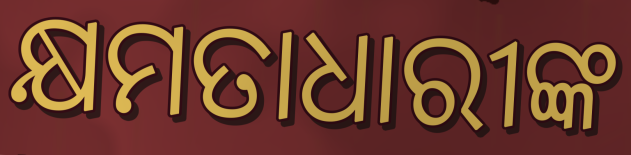
କ୍ଷମତାଧାରୀଙ୍କ